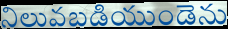
నిలువబడియుండెను